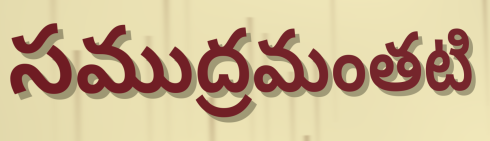
సముద్రమంతటి